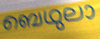
ബെഥുലാ